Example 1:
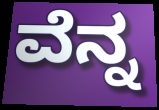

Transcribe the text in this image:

ವೆನ್ನ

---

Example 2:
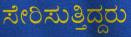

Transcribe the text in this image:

ಸೇರಿಸುತ್ತಿದ್ದರು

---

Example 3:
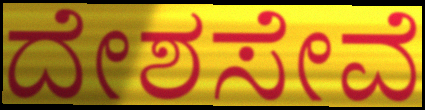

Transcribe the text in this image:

ದೇಶಸೇವೆ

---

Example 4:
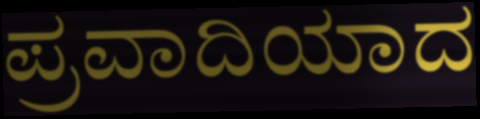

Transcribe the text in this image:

ಪ್ರವಾದಿಯಾದ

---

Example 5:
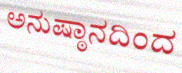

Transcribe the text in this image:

ಅನುಷ್ಠಾನದಿಂದ